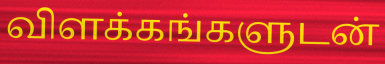
விளக்கங்களுடன்